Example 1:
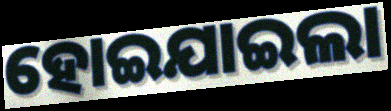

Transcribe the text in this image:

ହୋଇଯାଇଲା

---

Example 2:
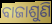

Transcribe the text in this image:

ବାଜାଶୁଣି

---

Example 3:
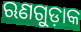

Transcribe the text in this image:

ଋଣଗୁଡ଼ାକ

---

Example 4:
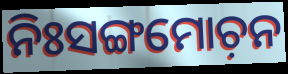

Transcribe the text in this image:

ନିଃସଙ୍ଗମୋଚ଼ନ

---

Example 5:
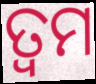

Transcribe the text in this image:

ତ୍ୱମ